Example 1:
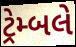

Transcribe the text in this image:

ટ્રેમ્બલે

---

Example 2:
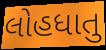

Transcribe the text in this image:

લોહધાતુ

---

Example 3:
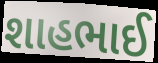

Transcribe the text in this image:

શાહભાઈ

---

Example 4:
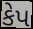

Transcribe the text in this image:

કેપ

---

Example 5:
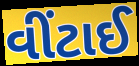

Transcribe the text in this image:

વીંટાઈ